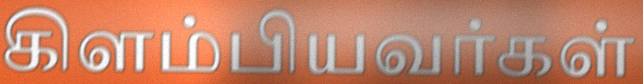
கிளம்பியவர்கள்